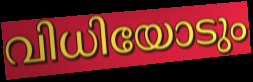
വിധിയോടും